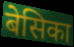
बेसिका